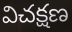
విచక్షణ